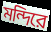
মন্দিরে